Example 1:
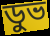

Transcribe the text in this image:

ডুভ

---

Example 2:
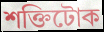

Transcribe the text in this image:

শক্তিটোক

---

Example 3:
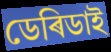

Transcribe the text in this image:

ডেৰিডাই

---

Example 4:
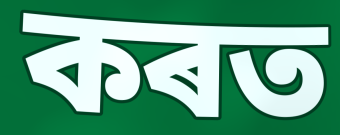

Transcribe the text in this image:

কৰত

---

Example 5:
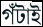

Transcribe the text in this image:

গঁটাই